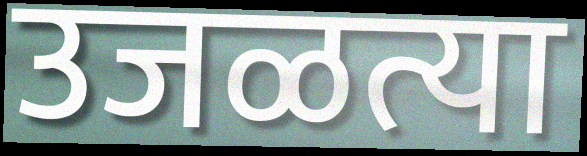
उजळत्या